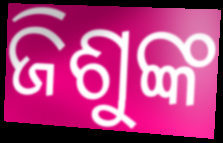
ଜିଶୁଙ୍କ